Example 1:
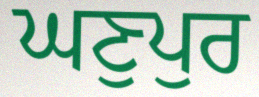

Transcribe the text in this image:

ਘਣੁਪੁਰ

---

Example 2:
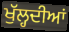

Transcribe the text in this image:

ਖੁੱਲ੍ਹਦੀਆਂ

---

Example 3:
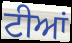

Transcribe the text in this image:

ਟੀਆਂ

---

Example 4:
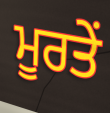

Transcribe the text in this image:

ਮੂਰਤੇਂ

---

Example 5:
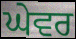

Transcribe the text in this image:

ਘੇਵਰ